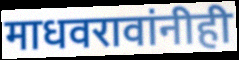
माधवरावांनीही